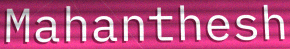
Mahanthesh